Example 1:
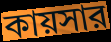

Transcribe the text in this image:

কায়সার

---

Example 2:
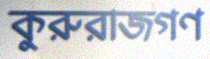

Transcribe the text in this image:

কুরুরাজগণ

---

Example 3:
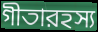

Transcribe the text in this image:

গীতারহস্য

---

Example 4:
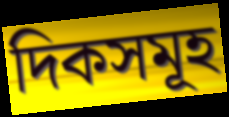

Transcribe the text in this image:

দিকসমূহ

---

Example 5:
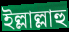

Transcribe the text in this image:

ইল্লাল্লাহু